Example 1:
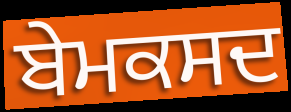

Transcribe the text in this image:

ਬੇਮਕਸਦ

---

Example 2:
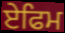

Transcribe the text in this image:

ਏਫਿਮ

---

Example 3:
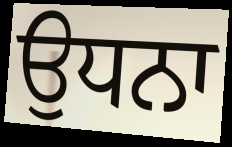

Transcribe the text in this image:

ਉਧਨਾ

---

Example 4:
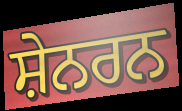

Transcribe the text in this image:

ਸ਼ੇਨਰਨ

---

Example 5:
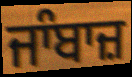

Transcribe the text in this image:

ਜਾੰਬਾਜ਼